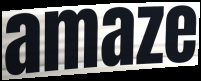
amaze